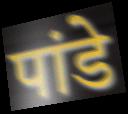
पांडे